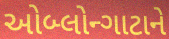
ઓબ્લોન્ગાટાને